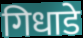
गिधाडे